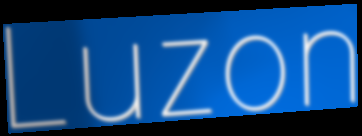
Luzon